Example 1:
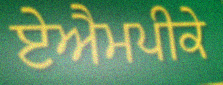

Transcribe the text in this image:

ਏਐਮਪੀਕੇ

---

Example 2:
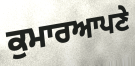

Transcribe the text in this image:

ਕੁਮਾਰਆਪਣੇ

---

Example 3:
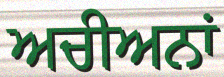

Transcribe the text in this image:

ਅਚੀਅਨਾਂ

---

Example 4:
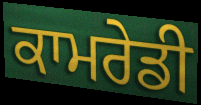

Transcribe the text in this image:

ਕਾਮਰੇਡੀ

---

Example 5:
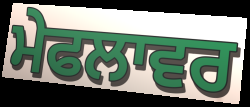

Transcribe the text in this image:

ਮੇਫਲਾਵਰ